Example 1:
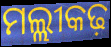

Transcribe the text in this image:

ମଲ୍ଲୀକଢ଼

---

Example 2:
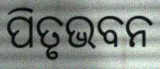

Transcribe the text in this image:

ପିତୃଭବନ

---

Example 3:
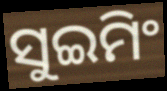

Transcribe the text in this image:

ସୁଇମିଂ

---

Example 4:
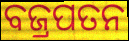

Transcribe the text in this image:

ବଜ୍ରପତନ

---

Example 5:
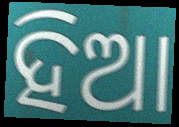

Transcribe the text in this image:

ହିଆ